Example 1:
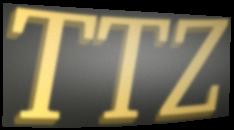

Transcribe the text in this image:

TTZ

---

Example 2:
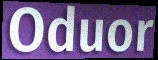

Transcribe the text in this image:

Oduor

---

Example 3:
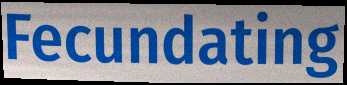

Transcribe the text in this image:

Fecundating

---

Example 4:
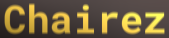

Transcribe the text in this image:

Chairez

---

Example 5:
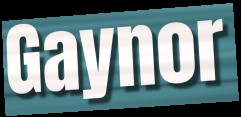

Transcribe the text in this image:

Gaynor